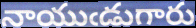
నాయుఁడుగారు